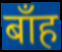
बाँह